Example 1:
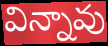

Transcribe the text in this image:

విన్నావు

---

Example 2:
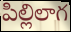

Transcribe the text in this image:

పిల్లిలాగ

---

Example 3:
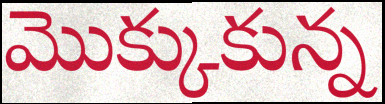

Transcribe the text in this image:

మొక్కుకున్న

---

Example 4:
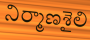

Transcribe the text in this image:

నిర్మాణశైలి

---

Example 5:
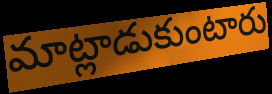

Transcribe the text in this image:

మాట్లాడుకుంటారు